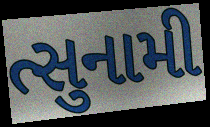
ત્સુનામી